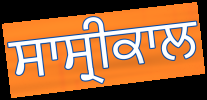
ਸਾਸ੍ਰੀਕਾਲ